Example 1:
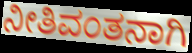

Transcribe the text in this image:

ನೀತಿವಂತನಾಗಿ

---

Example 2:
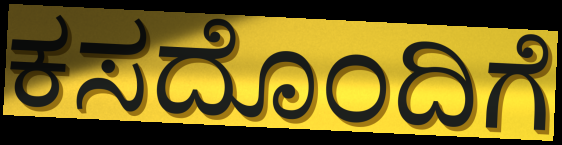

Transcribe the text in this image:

ಕಸದೊಂದಿಗೆ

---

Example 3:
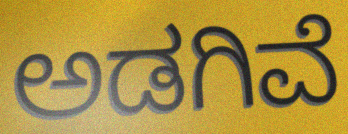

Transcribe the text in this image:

ಅಡಗಿವೆ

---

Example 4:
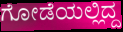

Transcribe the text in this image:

ಗೋಡೆಯಲ್ಲಿದ್ದ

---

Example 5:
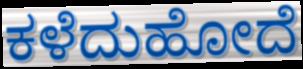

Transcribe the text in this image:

ಕಳೆದುಹೋದೆ